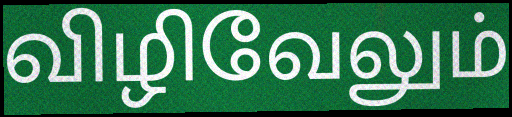
விழிவேலும்